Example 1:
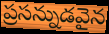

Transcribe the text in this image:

ప్రసన్నుడవైన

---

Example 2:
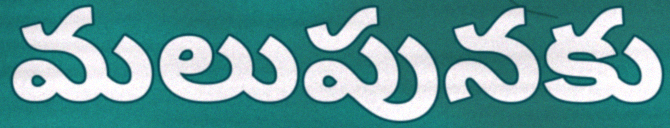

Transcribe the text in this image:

మలుపునకు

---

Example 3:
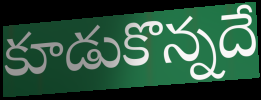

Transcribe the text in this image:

కూడుకొన్నదే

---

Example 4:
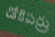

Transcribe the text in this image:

డోకిపర్రు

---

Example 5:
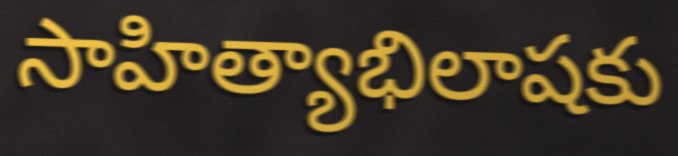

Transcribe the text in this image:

సాహిత్యాభిలాషకు